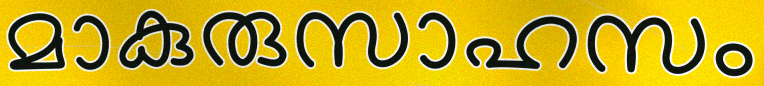
മാകുരുസാഹസം